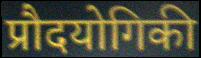
प्रौदयोगिकी